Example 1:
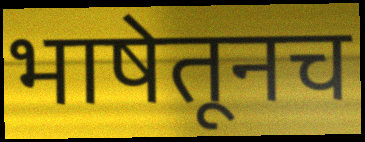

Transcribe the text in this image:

भाषेतूनच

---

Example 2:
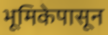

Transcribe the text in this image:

भूमिकेपासून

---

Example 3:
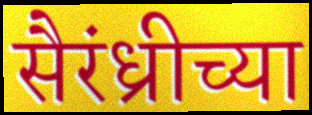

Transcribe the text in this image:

सैरंध्रीच्या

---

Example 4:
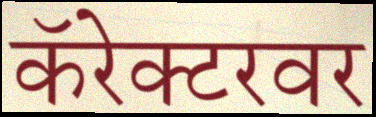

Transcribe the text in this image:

कॅरेक्टरवर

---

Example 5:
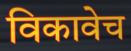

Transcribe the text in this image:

विकावेच